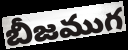
బీజముగ